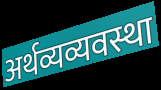
अर्थव्यव्यवस्था